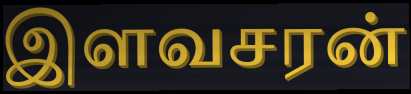
இளவசரன்